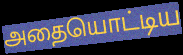
அதையொட்டிய